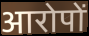
आरोपों